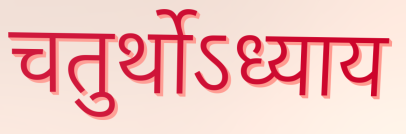
चतुर्थोऽध्याय